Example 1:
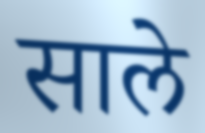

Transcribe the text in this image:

साले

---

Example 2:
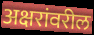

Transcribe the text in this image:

अक्षरांवरील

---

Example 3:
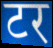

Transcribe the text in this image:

टर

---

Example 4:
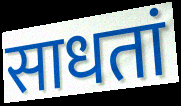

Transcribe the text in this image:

साधतां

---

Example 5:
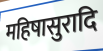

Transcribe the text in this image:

महिषासुरादि